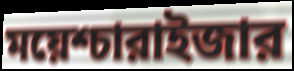
ময়েশ্চারাইজার